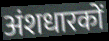
अंशधारकों